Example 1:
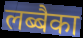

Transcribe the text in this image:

लब्बैका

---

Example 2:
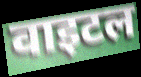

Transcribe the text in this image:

वाइटल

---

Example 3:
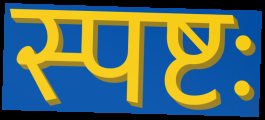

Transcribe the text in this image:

स्पष्टः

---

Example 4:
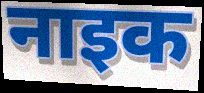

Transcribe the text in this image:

नाइक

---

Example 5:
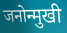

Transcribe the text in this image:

जनोन्मुखी